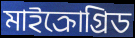
মাইক্রোগ্রিড